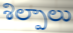
శిల్పాలు